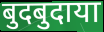
बुदबुदाया